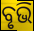
ବୃଭି